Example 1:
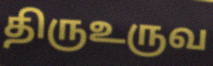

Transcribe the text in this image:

திருஉருவ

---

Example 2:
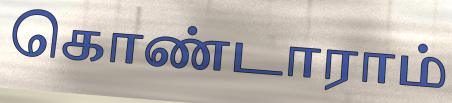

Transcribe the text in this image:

கொண்டாராம்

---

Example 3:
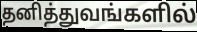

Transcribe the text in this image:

தனித்துவங்களில்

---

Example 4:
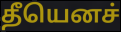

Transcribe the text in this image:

தீயெனச்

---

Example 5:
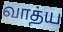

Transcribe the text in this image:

வாத்ய